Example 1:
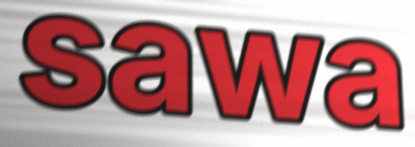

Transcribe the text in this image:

sawa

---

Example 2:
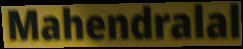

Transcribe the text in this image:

Mahendralal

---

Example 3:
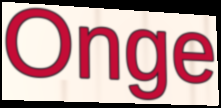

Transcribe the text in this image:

Onge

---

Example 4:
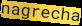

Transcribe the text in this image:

nagrecha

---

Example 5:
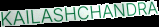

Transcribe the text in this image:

KAILASHCHANDRA